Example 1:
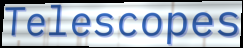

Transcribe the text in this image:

Telescopes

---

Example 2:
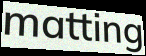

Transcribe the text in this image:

matting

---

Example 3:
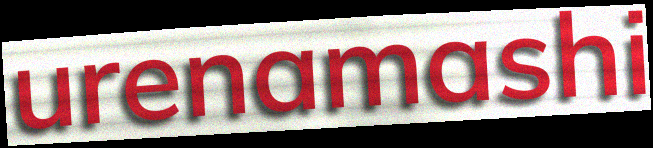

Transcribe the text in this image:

urenamashi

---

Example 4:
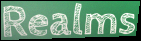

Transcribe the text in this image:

Realms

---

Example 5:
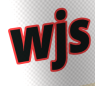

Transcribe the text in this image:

wjs